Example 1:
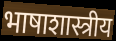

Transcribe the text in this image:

भाषाशास्त्रीय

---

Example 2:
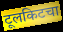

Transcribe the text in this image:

टूलकिटचा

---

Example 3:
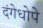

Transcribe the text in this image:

दंगेधोपे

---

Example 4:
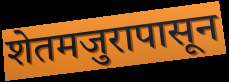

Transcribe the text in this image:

शेतमजुरापासून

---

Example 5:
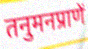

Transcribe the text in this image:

तनुमनप्राणें